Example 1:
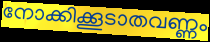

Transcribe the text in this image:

നോക്കിക്കൂടാതവണ്ണം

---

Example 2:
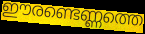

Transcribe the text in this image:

ഈരണ്ടെണ്ണത്തെ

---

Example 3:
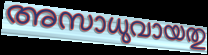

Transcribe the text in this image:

അസാധുവായതു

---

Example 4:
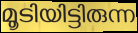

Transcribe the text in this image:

മൂടിയിട്ടിരുന്ന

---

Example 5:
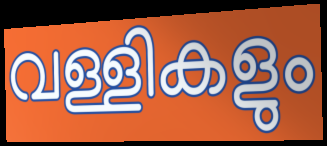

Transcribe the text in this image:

വള്ളികളും